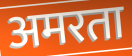
अमरता